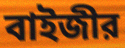
বাইজীর